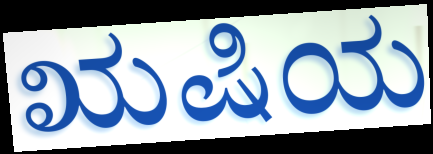
ಋಷಿಯ